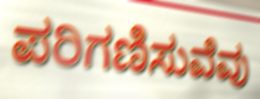
ಪರಿಗಣಿಸುವೆವು